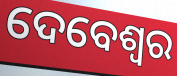
ଦେବେଶ୍ୱର